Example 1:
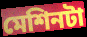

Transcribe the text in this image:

মেশিনটা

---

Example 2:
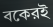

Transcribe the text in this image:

বকেরই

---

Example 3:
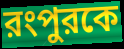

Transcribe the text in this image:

রংপুরকে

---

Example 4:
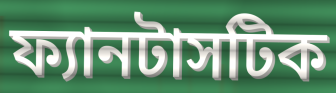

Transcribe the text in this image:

ফ্যানটাসটিক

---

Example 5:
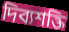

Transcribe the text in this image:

দিব্যশক্তি